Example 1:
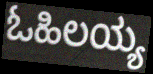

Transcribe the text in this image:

ಓಹಿಲಯ್ಯ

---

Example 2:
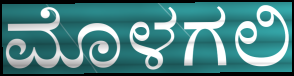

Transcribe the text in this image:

ಮೊಳಗಲಿ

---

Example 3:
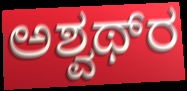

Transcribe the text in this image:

ಅಶ್ವಥ್‌ರ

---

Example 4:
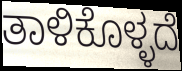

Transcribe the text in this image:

ತಾಳಿಕೊಳ್ಳದೆ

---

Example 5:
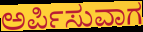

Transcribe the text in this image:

ಅರ್ಪಿಸುವಾಗ